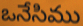
ఒనేసిము